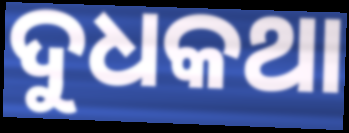
ଦୁଧକଥା